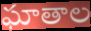
ఘాతాల